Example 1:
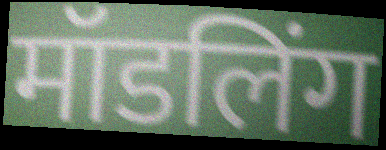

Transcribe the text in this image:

मॉडलिंग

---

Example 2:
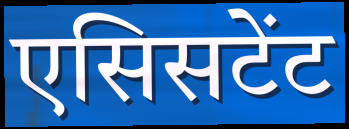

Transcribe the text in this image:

एसिसटेंट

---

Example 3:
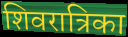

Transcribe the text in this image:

शिवरात्रिका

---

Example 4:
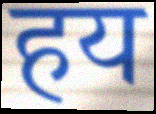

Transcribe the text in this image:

हय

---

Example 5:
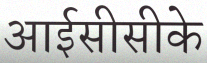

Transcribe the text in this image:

आईसीसीके